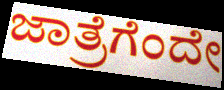
ಜಾತ್ರೆಗೆಂದೇ